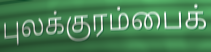
புலக்குரம்பைக்